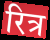
रित्र